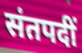
संतपदीं